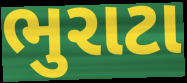
ભુરાટા